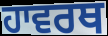
ਹਾਵਰਥ